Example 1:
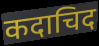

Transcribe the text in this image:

कदाचिद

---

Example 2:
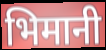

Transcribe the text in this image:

भिमानी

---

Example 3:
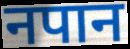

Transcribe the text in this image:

नपान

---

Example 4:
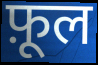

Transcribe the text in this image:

फ़ूल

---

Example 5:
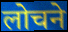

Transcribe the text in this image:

लोचने